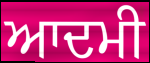
ਆਦਮੀ